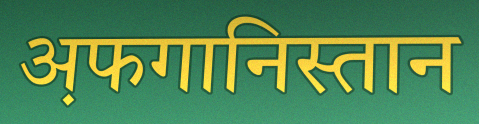
अ़फगानिस्तान